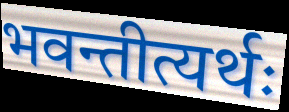
भवन्तीत्यर्थः